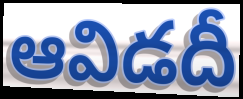
ఆవిడదీ